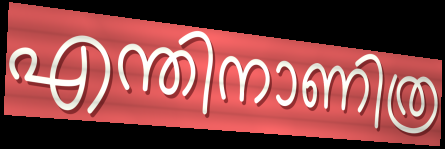
എന്തിനാണിത്ര